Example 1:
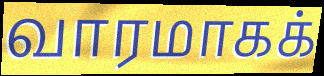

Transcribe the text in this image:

வாரமாகக்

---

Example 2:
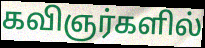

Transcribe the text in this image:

கவிஞர்களில்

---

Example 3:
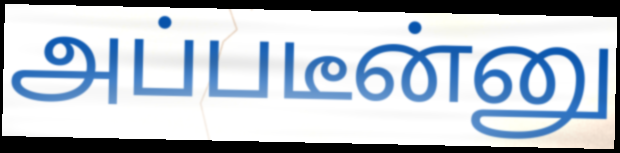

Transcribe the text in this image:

அப்படீன்னு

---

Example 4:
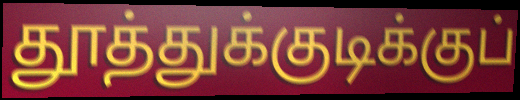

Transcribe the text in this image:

தூத்துக்குடிக்குப்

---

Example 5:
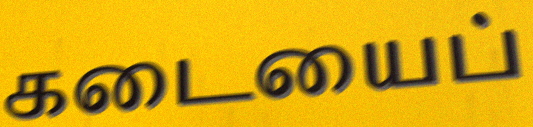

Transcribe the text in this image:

கடையைப்